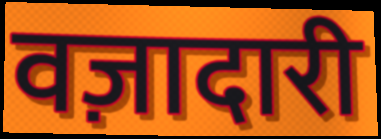
वज़ादारी